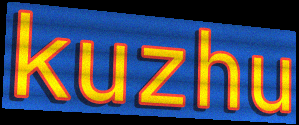
kuzhu